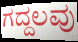
ಗದ್ದಲವು